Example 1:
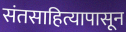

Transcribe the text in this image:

संतसाहित्यापासून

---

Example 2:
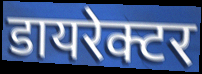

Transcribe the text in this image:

डायरेक्टर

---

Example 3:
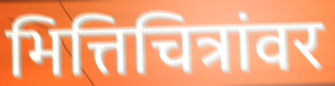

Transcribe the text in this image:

भित्तिचित्रांवर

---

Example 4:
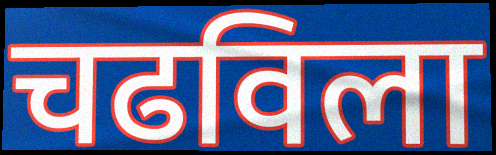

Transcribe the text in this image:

चढविला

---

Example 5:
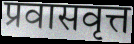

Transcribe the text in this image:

प्रवासवृत्त